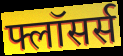
फ्लॉसर्स